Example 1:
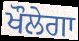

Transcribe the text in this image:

ਖੌਲੇਗਾ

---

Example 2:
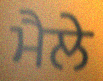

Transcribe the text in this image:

ਮੈਲੇ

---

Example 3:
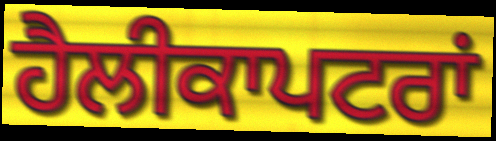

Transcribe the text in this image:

ਹੈਲੀਕਾਪਟਰਾਂ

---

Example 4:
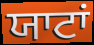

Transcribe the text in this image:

ਯਾਟਾਂ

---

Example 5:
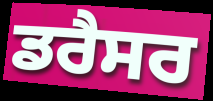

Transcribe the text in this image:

ਡਰੈਸਰ